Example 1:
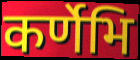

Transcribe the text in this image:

कर्णेभि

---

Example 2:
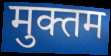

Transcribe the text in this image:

मुक्तम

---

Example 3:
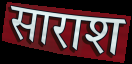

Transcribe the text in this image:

साराश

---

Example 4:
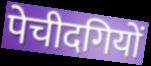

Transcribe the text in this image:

पेचीदगियों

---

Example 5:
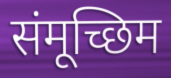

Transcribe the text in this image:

संमूच्छिम